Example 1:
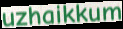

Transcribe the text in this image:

uzhaikkum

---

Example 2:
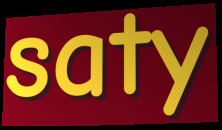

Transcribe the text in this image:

saty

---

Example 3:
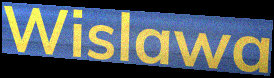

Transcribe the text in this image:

Wislawa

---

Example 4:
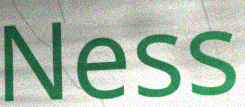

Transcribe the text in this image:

Ness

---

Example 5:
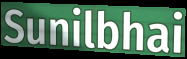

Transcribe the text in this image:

Sunilbhai